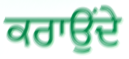
ਕਰਾਉਂਦੇ